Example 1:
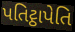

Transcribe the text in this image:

પતિટ્ઠાપેતિ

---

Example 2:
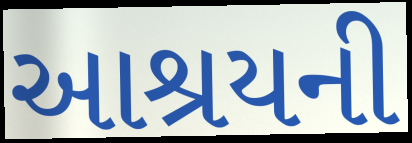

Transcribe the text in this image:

આશ્રયની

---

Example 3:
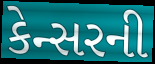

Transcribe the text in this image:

કેન્સરની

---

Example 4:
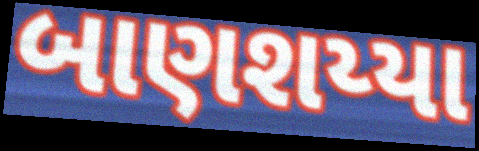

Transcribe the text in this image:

બાણશય્યા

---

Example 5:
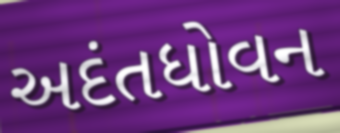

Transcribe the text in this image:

અદંતધોવન